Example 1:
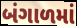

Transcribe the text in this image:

બંગાળમાં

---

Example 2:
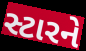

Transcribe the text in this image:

સ્ટારને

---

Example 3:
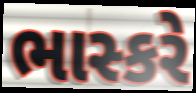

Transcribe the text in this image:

ભાસ્કરે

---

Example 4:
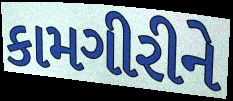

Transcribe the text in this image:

કામગીરીને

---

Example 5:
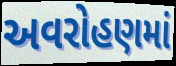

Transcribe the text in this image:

અવરોહણમાં